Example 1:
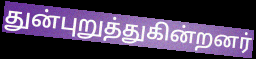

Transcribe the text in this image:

துன்புறுத்துகின்றனர்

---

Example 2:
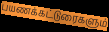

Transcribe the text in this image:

பயணக்கட்டுரைகளும்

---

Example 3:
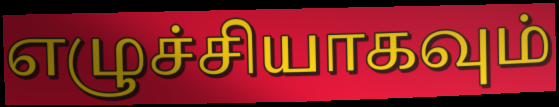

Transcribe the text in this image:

எழுச்சியாகவும்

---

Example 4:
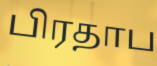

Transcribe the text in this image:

பிரதாப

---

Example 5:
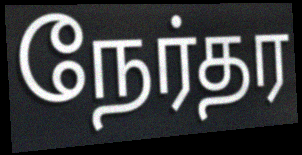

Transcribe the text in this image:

நேர்தர